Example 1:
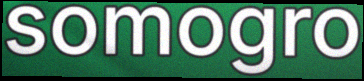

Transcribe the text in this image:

somogro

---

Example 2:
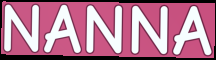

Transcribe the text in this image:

NANNA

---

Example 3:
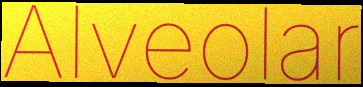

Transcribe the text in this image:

Alveolar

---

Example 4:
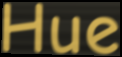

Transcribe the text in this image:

Hue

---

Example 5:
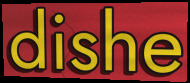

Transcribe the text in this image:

dishe